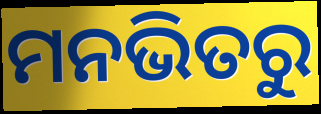
ମନଭିତରୁ